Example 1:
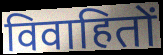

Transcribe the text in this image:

विवाहितों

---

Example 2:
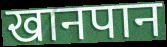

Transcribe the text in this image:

खानपान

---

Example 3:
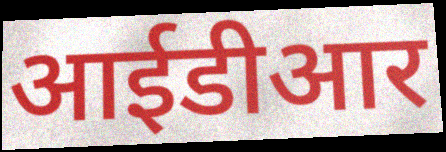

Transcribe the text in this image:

आईडीआर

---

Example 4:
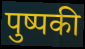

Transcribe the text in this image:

पुष्पकी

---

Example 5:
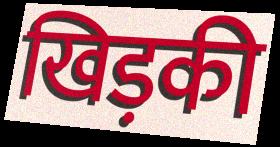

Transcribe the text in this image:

खिड़की